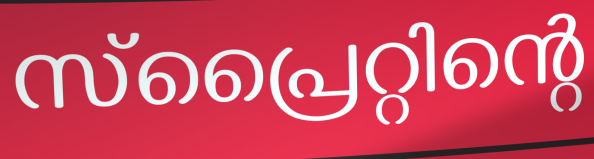
സ്പ്രൈറ്റിന്റെ